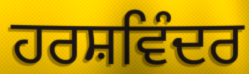
ਹਰਸ਼ਵਿੰਦਰ